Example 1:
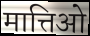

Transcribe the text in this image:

मात्तिओ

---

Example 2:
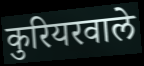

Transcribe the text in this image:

कुरियरवाले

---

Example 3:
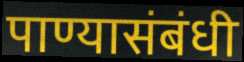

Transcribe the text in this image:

पाण्यासंबंधी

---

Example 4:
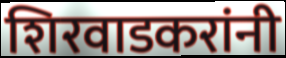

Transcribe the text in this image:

शिरवाडकरांनी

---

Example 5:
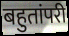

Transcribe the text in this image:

बहुतांपरी